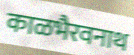
काळभैरवनाथ